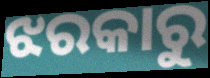
ଝରକାରୁ